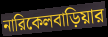
নারিকেলবাড়িয়ার